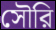
সৌরি